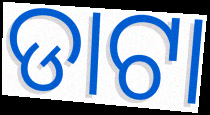
ଡାଟା